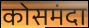
कोसमंदा